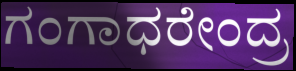
ಗಂಗಾಧರೇಂದ್ರ